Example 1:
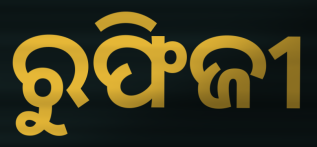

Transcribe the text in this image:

ରୁଫିଜୀ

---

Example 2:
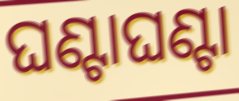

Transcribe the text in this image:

ଘଣ୍ଟାଘଣ୍ଟା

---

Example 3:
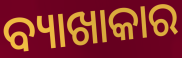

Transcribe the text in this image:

ବ୍ୟାଖାକାର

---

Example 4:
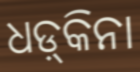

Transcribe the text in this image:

ଧଡ଼୍‍କିନା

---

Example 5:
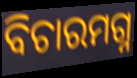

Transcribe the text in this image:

ବିଚାରମଗ୍ନ